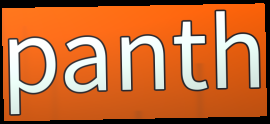
panth